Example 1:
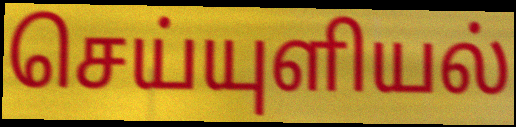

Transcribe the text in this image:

செய்யுளியல்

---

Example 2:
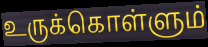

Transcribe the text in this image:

உருக்கொள்ளும்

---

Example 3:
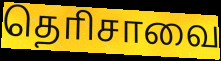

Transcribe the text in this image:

தெரிசாவை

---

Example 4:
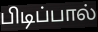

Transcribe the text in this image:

பிடிப்பால்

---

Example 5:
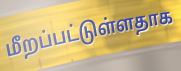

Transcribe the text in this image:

மீறப்பட்டுள்ளதாக